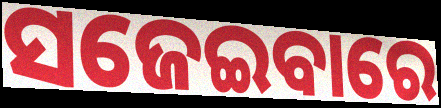
ସଜେଇବାରେ